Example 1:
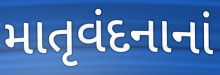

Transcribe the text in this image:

માતૃવંદનાનાં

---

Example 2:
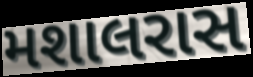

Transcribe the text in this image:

મશાલરાસ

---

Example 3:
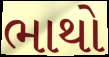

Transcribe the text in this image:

ભાથો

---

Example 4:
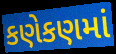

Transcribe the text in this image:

કણેકણમાં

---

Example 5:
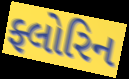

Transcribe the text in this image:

ફ્લોરિન